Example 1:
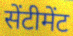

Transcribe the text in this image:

सेंटीमेंट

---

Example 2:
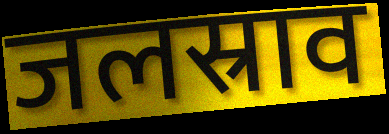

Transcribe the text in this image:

जलस्राव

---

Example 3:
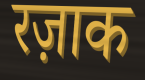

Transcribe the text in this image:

रज़ाक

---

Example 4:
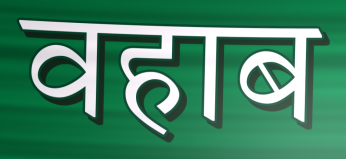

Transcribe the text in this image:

वहाब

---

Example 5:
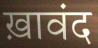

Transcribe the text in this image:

ख़ावंद